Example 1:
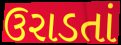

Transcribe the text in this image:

ઉરાડતાં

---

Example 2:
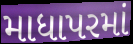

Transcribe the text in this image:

માધાપરમાં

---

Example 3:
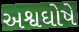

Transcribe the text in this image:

અશ્વઘોષે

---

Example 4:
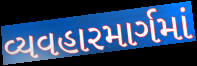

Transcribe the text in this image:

વ્યવહારમાર્ગમાં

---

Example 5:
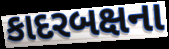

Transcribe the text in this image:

કાદરબક્ષના